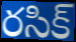
రసిక్